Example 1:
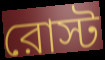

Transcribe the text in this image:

রোস্ট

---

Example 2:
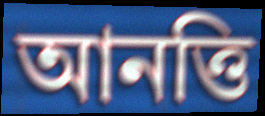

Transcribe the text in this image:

আনত্তি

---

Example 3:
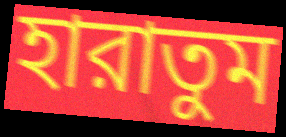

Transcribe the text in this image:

হারাতুম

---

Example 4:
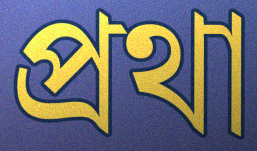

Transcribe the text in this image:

প্রথা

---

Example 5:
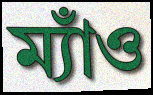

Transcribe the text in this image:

ম্যাঁও